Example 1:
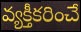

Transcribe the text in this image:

వ్యక్తీకరించే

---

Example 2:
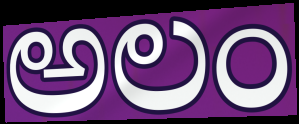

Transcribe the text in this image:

అలం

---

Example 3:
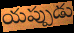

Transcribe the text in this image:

యప్పుడు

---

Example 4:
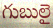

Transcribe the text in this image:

గుబులై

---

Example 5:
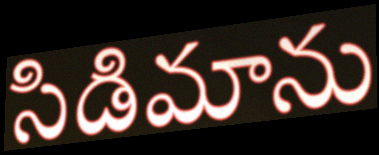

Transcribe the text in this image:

సిడిమాను